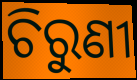
ଚିରୁଣୀ